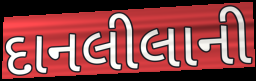
દાનલીલાની